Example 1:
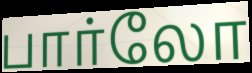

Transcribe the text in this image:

பார்லோ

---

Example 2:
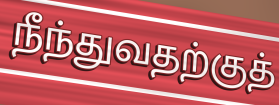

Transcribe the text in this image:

நீந்துவதற்குத்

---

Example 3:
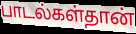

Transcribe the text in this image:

பாடல்கள்தான்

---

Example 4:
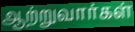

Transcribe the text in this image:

ஆற்றுவார்கள்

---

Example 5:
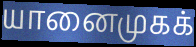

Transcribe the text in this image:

யானைமுகக்